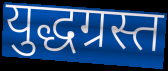
युद्धग्रस्त